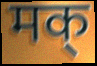
मक्